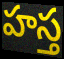
హస్త